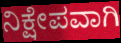
ನಿಕ್ಷೇಪವಾಗಿ